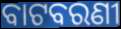
ବାଟବରଣୀ